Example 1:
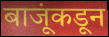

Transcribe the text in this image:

बाजूंकडून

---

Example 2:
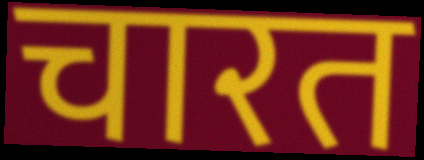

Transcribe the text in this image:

चारत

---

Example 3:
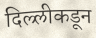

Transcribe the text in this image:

दिल्लीकडून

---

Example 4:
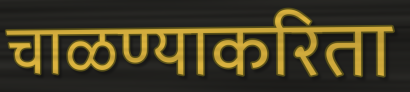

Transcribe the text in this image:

चाळण्याकरिता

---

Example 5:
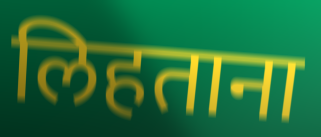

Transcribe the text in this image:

लिहताना